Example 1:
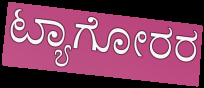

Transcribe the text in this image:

ಟ್ಯಾಗೋರರ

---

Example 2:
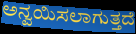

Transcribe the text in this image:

ಅನ್ವಯಿಸಲಾಗುತ್ತದೆ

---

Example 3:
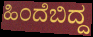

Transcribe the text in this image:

ಹಿಂದೆಬಿದ್ದ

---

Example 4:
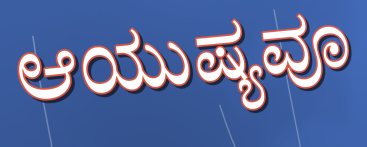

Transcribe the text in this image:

ಆಯುಷ್ಯವೂ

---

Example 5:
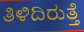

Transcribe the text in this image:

ತಿಳಿದಿರುತ್ತೆ